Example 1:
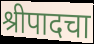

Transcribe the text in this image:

श्रीपादचा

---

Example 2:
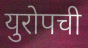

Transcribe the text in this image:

युरोपची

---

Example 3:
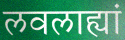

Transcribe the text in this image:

लवलाह्यां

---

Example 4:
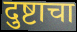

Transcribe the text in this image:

दुष्टाचा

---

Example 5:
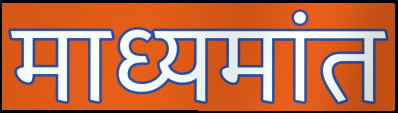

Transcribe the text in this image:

माध्यमांत